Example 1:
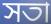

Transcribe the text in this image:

সতা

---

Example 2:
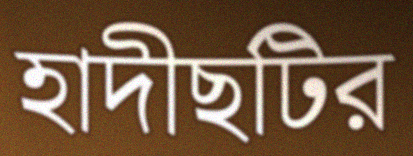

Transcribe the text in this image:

হাদীছটির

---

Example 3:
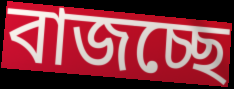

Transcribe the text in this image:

বাজচ্ছে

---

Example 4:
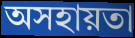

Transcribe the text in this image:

অসহায়তা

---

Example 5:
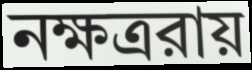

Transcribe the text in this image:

নক্ষত্ররায়